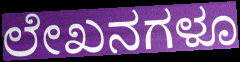
ಲೇಖನಗಳೂ